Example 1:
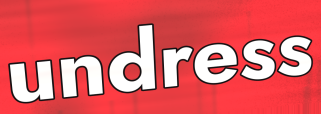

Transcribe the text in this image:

undress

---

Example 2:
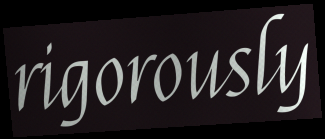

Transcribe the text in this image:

rigorously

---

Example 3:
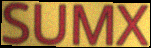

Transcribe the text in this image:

SUMX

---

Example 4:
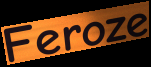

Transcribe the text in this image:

Feroze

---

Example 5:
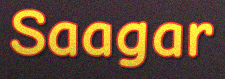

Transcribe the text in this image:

Saagar